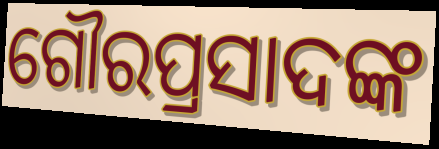
ଗୌରପ୍ରସାଦଙ୍କ